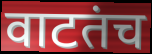
वाटतंच